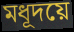
মধূদয়ে